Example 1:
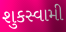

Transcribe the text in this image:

શુકસ્વામી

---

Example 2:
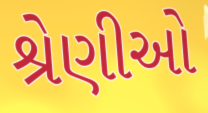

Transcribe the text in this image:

શ્રેણીઓ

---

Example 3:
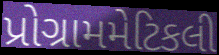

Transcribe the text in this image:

પ્રોગ્રામમેટિકલી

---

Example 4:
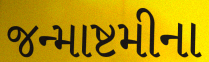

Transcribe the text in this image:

જન્માષ્ટમીના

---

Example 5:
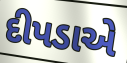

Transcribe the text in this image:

દીપડાએ